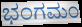
ಭಂಗಮಂ